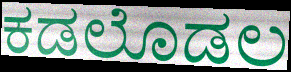
ಕಡಲೊಡಲ